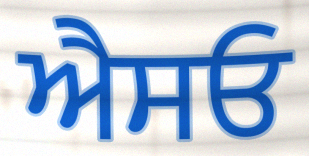
ਐਸਓ